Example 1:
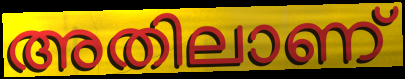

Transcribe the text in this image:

അതിലാണ്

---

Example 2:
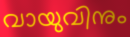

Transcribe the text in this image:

വായുവിനും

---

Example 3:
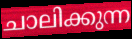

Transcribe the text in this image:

ചാലിക്കുന്ന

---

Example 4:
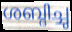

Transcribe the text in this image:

ശബ്ദിച്ചു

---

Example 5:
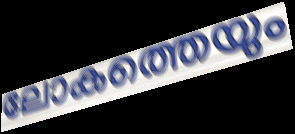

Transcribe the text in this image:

ലോകത്തെയും